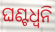
ଘଣ୍ଟଧ୍ୱନି